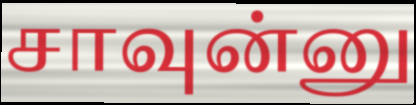
சாவுன்னு